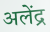
अलेंद्र